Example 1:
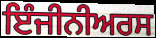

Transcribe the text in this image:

ਇੰਜੀਨੀਅਰਸ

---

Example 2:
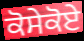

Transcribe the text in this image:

ਕੋਸੇਕੋਏ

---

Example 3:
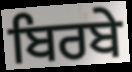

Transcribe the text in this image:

ਬਿਰਬੇ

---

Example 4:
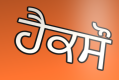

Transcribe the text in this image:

ਹੈਕਸੌ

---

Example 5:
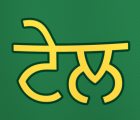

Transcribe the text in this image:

ਟੇਲ